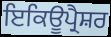
ਇਕਿਊਪ੍ਰੈਸ਼ਰ